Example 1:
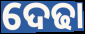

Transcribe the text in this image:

ଦେଢା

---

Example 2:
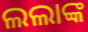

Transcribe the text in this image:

ଲଲାଙ୍କ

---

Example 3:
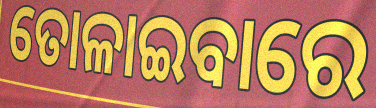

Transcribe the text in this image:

ତୋଳାଇବାରେ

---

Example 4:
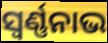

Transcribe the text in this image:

ସ୍ବର୍ଣ୍ଣନାଭ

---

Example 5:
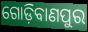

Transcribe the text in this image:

ଗୋଡ଼ିବାଣପୁର